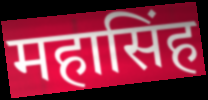
महासिंह